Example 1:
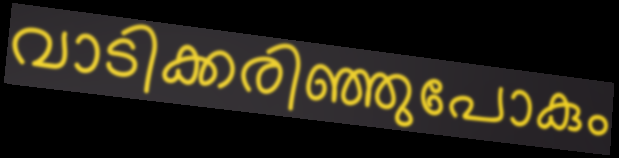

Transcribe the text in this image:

വാടിക്കരിഞ്ഞുപോകും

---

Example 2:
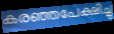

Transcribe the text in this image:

കരഞ്ഞപേക്ഷിച്ചു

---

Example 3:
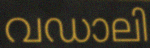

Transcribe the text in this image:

വഡാലി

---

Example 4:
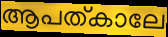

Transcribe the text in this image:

ആപത്കാലേ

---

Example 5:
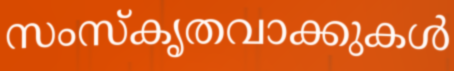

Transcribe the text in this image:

സംസ്കൃതവാക്കുകൾ